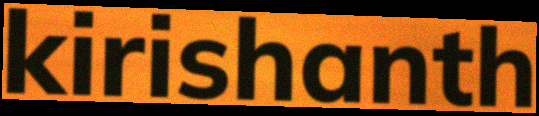
kirishanth